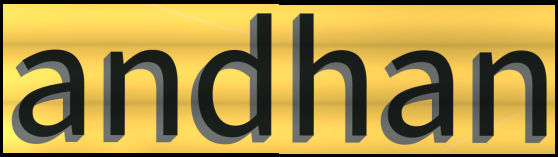
andhan